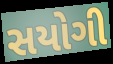
સયોગી